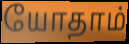
யோதாம்